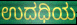
ಉದಧಿಯ